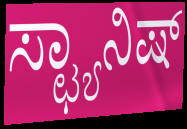
ಸ್ಟ್ಯಾನಿಷ್